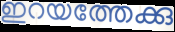
ഇറയത്തേക്കു